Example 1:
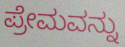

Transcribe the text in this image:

ಪ್ರೇಮವನ್ನು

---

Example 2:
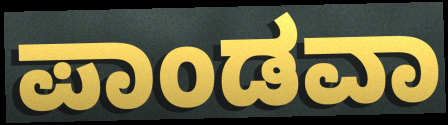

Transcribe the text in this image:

ಪಾಂಡವಾ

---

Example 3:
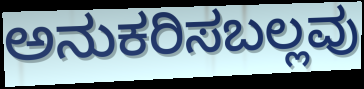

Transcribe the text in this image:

ಅನುಕರಿಸಬಲ್ಲವು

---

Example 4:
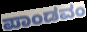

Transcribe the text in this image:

ಪಾಂಡವಂ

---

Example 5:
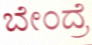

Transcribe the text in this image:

ಬೇಂದ್ರೆ